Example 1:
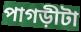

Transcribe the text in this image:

পাগড়ীটা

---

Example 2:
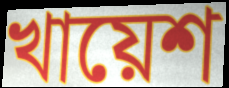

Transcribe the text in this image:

খায়েশ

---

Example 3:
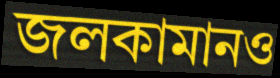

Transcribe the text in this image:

জলকামানও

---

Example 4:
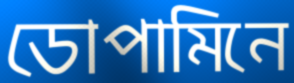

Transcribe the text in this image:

ডোপামিনে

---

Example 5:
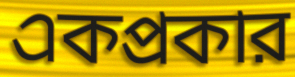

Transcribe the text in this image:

একপ্রকার